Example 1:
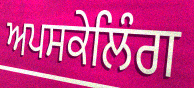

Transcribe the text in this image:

ਅਪਸਕੇਲਿੰਗ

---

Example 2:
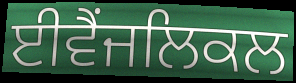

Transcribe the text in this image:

ਈਵੈਂਜਲਿਕਲ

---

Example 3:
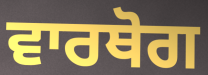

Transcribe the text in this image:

ਵਾਰਥੋਗ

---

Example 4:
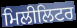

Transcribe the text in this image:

ਮਿਲੀਲਿਟਰ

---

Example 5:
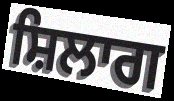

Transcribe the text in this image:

ਸ਼ਿਲਾਗ